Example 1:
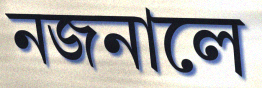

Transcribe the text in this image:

নজনালে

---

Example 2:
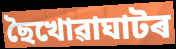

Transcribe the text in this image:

ছৈখোৱাঘাটৰ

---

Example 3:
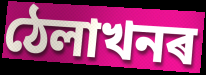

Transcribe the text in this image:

ঠেলাখনৰ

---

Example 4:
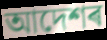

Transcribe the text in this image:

আদেশৰ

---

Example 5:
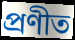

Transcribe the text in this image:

প্ৰণীত